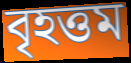
বৃহত্তম